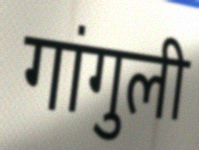
गांगुली